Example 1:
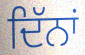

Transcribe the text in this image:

ਦਿੱਨਾਂ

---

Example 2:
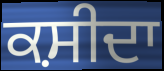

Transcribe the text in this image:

ਕ਼ਸੀਦਾ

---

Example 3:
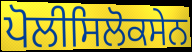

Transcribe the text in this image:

ਪੋਲੀਸਿਲੋਕਸੇਨ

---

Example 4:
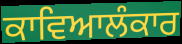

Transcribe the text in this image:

ਕਾਵਿਆਲੰਕਾਰ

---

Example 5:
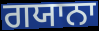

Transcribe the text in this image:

ਗਯਾਨਾ